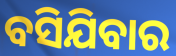
ବସିଯିବାର